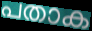
പതാക